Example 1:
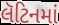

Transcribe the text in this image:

લૅટિનમાં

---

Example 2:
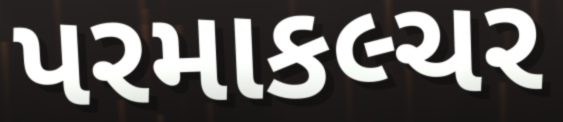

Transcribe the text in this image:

પરમાકલ્ચર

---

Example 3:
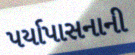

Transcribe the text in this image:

પર્યાપાસનાની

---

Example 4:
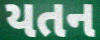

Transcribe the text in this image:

યતન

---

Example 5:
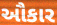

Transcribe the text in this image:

ઔકાર